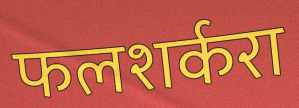
फलशर्करा